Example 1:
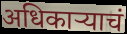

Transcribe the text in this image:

अधिकाऱ्याचं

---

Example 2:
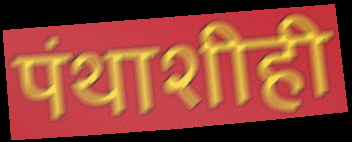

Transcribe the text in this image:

पंथाशीही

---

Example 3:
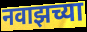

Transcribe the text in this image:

नवाझच्या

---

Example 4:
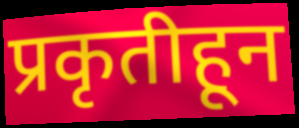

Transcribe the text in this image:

प्रकृतीहून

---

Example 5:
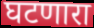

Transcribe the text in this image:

घटणारा